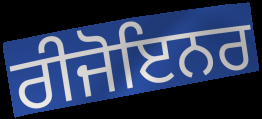
ਰੀਜੋਇਨਰ